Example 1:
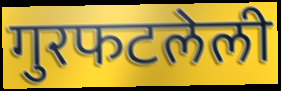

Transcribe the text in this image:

गुरफटलेली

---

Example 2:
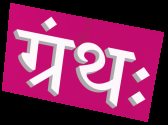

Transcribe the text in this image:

ग्रंथः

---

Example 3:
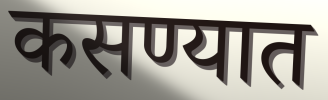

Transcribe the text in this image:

कसण्यात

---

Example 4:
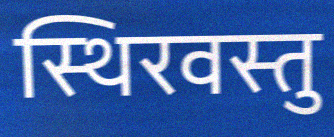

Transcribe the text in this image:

स्थिरवस्तु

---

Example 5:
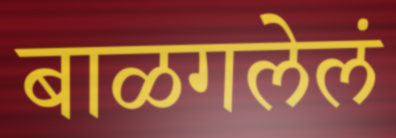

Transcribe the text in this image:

बाळगलेलं